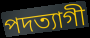
পদত্যাগী